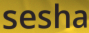
sesha